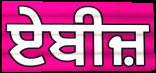
ਏਬੀਜ਼